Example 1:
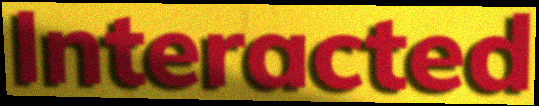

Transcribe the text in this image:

Interacted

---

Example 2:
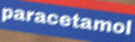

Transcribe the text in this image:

paracetamol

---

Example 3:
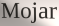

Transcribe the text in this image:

Mojar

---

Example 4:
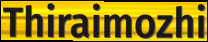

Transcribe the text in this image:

Thiraimozhi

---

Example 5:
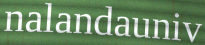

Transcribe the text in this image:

nalandauniv